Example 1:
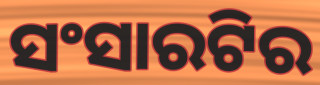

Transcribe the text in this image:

ସଂସାରଟିର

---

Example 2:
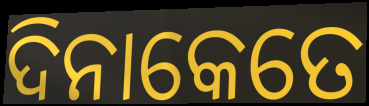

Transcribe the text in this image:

ଦିନାକେତେ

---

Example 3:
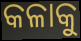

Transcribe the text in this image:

କଳାକୁ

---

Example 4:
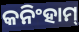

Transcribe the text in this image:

କନିଂହାମ୍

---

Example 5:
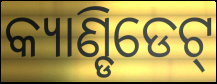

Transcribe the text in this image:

କ୍ୟାଣ୍ଡିଡେଟ୍